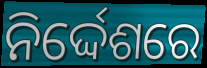
ନିର୍ଦ୍ଦେଶରେ